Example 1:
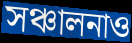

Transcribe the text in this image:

সঞ্চালনাও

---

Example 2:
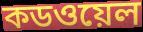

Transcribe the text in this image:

কডওয়েল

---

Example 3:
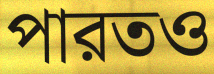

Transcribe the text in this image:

পারতও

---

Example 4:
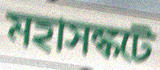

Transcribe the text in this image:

মহাসঙ্কটে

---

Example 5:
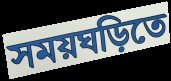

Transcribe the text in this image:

সময়ঘড়িতে